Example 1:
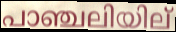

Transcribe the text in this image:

പാഞ്ചലിയില്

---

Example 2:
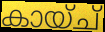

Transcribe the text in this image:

കായ്ച്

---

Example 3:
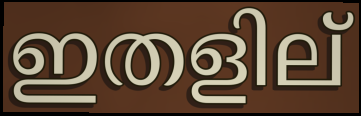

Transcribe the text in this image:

ഇതളില്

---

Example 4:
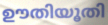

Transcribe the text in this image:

ഊതിയൂതി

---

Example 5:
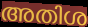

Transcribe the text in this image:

അതിശ